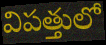
విపత్తులో